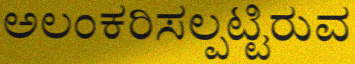
ಅಲಂಕರಿಸಲ್ಪಟ್ಟಿರುವ